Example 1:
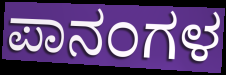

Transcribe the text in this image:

ಪಾನಂಗಳ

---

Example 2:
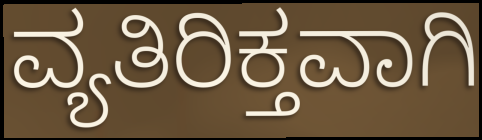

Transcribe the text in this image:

ವ್ಯತಿರಿಕ್ತವಾಗಿ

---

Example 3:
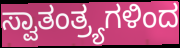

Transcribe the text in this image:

ಸ್ವಾತಂತ್ರ್ಯಗಳಿಂದ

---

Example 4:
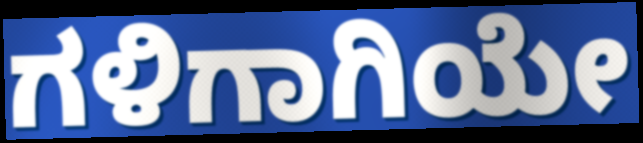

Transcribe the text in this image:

ಗಳಿಗಾಗಿಯೇ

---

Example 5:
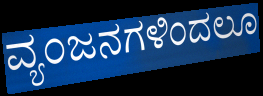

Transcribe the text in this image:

ವ್ಯಂಜನಗಳಿಂದಲೂ